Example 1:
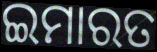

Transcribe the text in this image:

ଇମାରତ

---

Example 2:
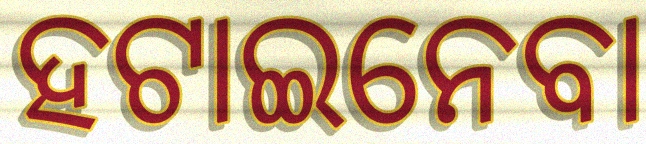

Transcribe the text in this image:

ହଟାଇନେବା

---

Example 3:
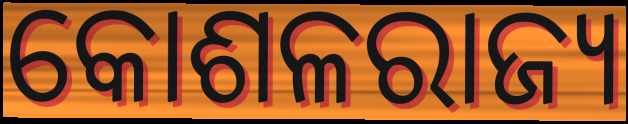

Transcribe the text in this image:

କୋଶଳରାଜ୍ୟ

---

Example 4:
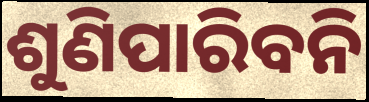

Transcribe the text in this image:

ଶୁଣିପାରିବନି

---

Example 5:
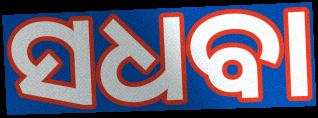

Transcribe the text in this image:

ସଧବା